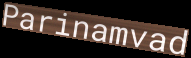
Parinamvad